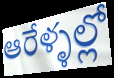
ఆరేళ్ళల్లో